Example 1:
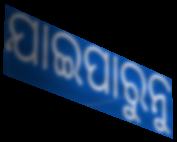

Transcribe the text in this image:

ଯାଇପାରୁନୁ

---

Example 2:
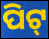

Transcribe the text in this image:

ପିଟ୍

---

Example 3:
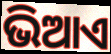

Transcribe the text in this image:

ଭିଆଏ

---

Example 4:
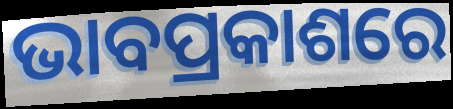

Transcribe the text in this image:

ଭାବପ୍ରକାଶରେ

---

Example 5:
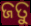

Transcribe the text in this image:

ଜତୁ